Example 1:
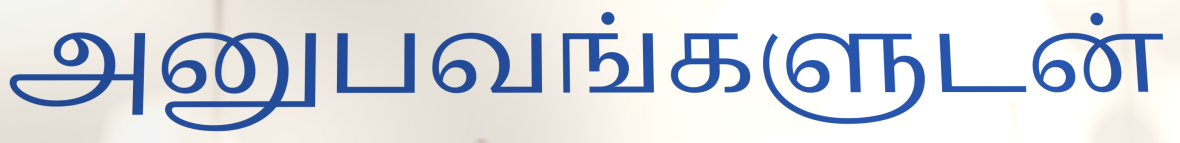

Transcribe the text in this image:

அனுபவங்களுடன்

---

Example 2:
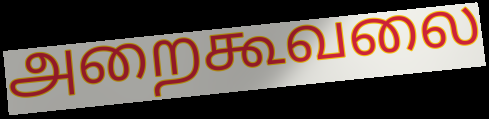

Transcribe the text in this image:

அறைகூவலை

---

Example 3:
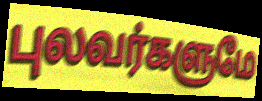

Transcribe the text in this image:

புலவர்களுமே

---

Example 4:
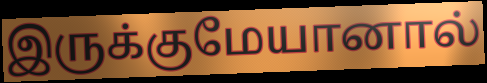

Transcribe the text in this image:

இருக்குமேயானால்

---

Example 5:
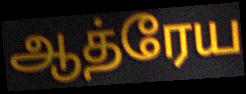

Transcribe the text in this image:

ஆத்ரேய